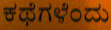
ಕಥೆಗಳೆಂದು